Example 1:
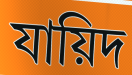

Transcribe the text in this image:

যায়িদ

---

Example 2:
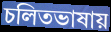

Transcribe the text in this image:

চলিতভাষায়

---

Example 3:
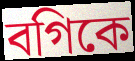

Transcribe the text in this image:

বগিকে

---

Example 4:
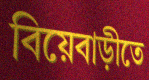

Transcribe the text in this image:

বিয়েবাড়ীতে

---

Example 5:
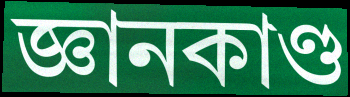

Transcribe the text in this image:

জ্ঞানকাণ্ড